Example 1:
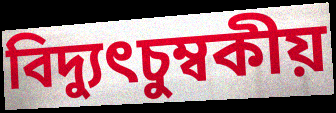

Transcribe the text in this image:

বিদ্যুৎচুম্বকীয়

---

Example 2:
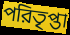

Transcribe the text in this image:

পরিতৃপ্তা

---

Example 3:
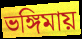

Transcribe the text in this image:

ভঙ্গিমায়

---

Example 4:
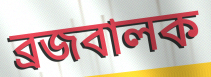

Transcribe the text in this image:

ব্রজবালক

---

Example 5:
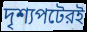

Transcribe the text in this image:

দৃশ্যপটেরই